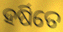
ହର୍ଷିତେ